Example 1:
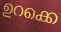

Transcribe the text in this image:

ഉറക്കെ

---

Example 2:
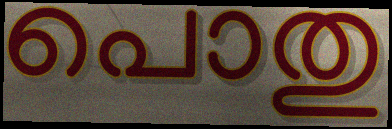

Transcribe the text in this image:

പൊതു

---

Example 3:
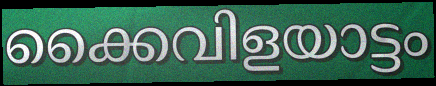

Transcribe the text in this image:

ക്കൈവിളയാട്ടം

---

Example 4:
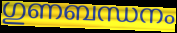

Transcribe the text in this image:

ഗുണബന്ധനം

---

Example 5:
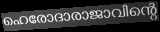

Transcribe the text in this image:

ഹെരോദാരാജാവിന്റെ